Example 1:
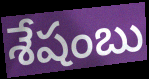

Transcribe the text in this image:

శేషంబు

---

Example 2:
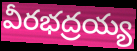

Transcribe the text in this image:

వీరభద్రయ్య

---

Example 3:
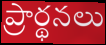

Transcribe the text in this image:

ప్రార్థనలు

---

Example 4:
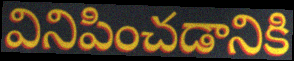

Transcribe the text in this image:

వినిపించడానికి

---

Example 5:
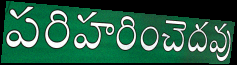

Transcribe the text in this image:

పరిహరించెదవు